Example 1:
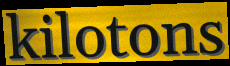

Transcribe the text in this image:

kilotons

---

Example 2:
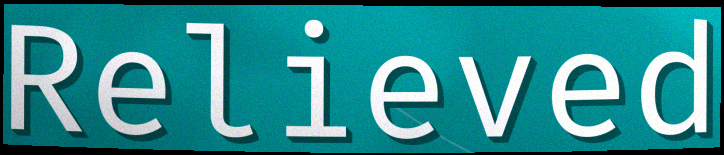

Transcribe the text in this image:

Relieved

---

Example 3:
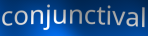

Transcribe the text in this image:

conjunctival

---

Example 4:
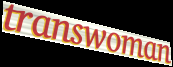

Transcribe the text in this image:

transwoman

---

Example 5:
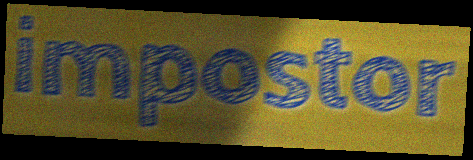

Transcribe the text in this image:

impostor